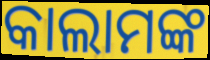
କାଲାମଙ୍କ